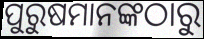
ପୁରୁଷମାନଙ୍କଠାରୁ